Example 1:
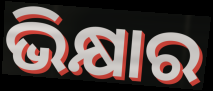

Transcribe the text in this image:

ଭିକ୍ଷାର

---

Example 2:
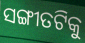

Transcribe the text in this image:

ସଙ୍ଗୀତଟିକୁ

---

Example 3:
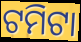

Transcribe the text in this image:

ଟମିଟା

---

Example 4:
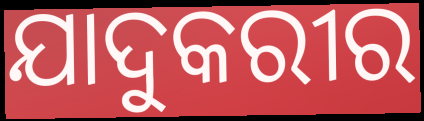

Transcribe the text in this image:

ଯାଦୁକରୀର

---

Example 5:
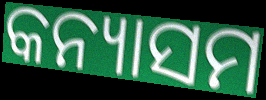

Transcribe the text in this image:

କନ୍ୟାସମ